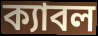
ক্যাবল